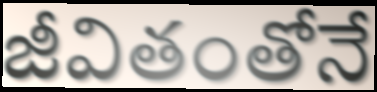
జీవితంతోనే